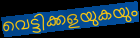
വെട്ടിക്കളയുകയും